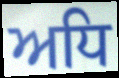
ਅਧਿ